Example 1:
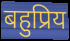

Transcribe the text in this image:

बहुप्रिय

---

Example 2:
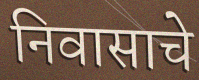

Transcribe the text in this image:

निवासाचे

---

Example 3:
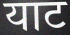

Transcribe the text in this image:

याट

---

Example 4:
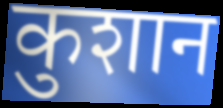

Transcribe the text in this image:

कुशान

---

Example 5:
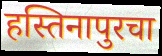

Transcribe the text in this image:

हस्तिनापुरचा